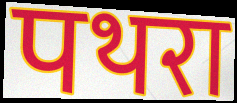
पथरा